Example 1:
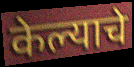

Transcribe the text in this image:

केल्याचे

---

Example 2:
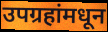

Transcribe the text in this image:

उपग्रहांमधून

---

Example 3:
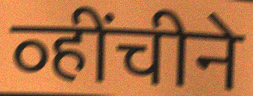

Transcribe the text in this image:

व्हींचीने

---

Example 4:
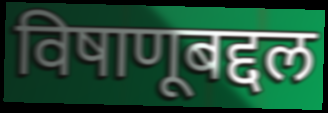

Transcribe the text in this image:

विषाणूबद्दल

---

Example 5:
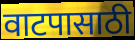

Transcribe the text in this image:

वाटपासाठी